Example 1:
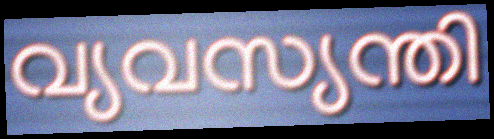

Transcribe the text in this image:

വ്യവസ്യന്തി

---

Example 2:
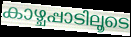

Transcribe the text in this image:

കാഴ്ചപ്പാടിലൂടെ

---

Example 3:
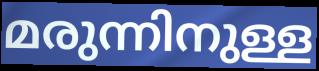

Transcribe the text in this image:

മരുന്നിനുള്ള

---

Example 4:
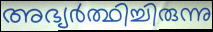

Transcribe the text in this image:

അഭ്യർത്ഥിച്ചിരുന്നു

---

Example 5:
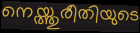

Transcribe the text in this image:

നെയ്ത്തുരീതിയുടെ